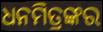
ଧନମିତ୍ରଙ୍କର